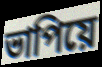
ভাপিয়ে